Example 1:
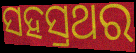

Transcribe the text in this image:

ସହସ୍ରଥର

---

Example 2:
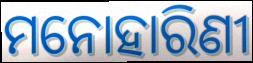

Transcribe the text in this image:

ମନୋହାରିଣୀ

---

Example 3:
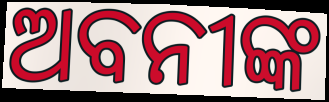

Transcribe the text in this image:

ଅବନୀଙ୍କ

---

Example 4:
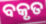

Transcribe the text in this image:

ବକୃତ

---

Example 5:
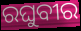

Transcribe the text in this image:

ରଘୁବୀର